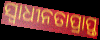
ସ୍ବାଧୀନତାପ୍ରାପ୍ତ